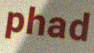
phad